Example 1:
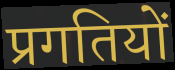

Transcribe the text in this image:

प्रगतियों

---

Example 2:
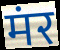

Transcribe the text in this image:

मंर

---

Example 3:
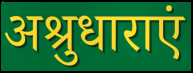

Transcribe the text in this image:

अश्रुधाराएं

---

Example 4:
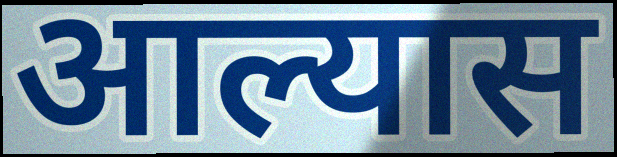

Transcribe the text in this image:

आल्यास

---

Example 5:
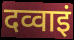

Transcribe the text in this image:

दव्वाइं